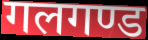
गलगण्ड